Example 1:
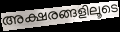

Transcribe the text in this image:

അക്ഷരങ്ങളിലൂടെ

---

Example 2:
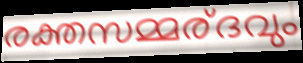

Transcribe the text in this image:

രക്തസമ്മര്ദവും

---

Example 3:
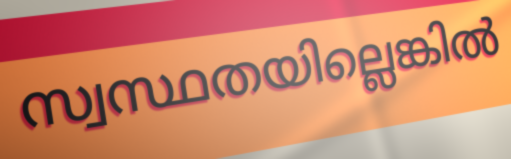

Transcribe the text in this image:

സ്വസ്ഥതയില്ലെങ്കിൽ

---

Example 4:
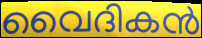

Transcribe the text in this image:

വൈദികൻ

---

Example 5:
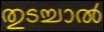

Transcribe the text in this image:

തുടച്ചാൽ